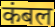
कंबल